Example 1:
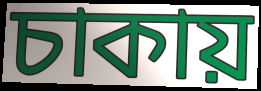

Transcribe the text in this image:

চাকায়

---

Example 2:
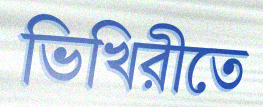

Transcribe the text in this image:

ভিখিরীতে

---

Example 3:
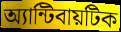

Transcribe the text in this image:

অ্যান্টিবায়টিক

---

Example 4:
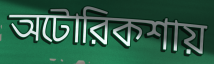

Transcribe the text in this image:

অটোরিকশায়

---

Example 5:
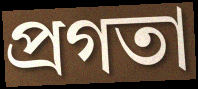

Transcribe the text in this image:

প্রগতা